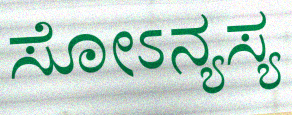
ಸೋಽನ್ಯಸ್ಯ